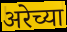
अरेच्या